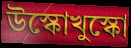
উস্কোখুস্কো